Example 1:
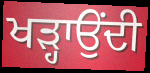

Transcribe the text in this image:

ਖੜ੍ਹਾਉਂਦੀ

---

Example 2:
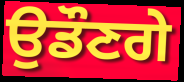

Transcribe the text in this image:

ਉਡੌਣਗੇ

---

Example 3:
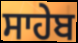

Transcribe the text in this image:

ਸਾਹੇਬ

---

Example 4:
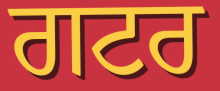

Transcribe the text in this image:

ਗਟਰ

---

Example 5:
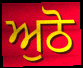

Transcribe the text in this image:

ਅੁਠੋ